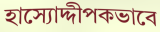
হাস্যোদ্দীপকভাবে